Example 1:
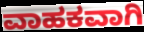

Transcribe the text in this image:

ವಾಹಕವಾಗಿ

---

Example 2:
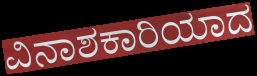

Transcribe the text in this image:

ವಿನಾಶಕಾರಿಯಾದ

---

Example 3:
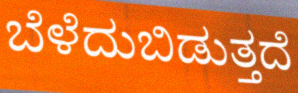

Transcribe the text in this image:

ಬೆಳೆದುಬಿಡುತ್ತದೆ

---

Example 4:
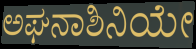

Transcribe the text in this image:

ಅಘನಾಶಿನಿಯೇ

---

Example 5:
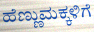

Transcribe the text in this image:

ಹೆಣ್ಣುಮಕ್ಕಳಿಗೆ